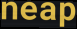
neap